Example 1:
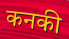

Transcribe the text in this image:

कनकी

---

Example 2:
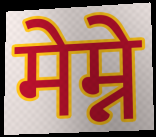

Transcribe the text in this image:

मेम्ने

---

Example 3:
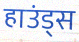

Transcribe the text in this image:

हाउंड्स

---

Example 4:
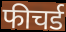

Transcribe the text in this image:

फीचर्ड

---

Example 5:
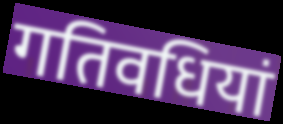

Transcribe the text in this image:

गतिवधियां